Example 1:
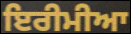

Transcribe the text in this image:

ਇਰੀਮੀਆ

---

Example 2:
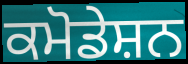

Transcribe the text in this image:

ਕਮੋਡੇਸ਼ਨ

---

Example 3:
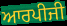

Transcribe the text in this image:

ਆਰਪੀਜੀ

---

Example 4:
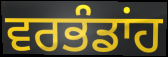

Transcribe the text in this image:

ਵਰਭੰਡਾਂਹ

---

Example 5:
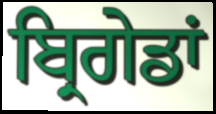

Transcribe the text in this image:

ਬ੍ਰਿਗੇਡਾਂ